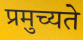
प्रमुच्यते